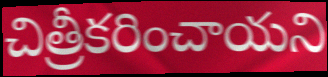
చిత్రీకరించాయని